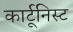
कार्टूनिस्ट